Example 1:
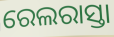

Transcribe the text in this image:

ରେଲରାସ୍ତା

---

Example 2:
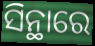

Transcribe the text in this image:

ସିନ୍ଥାରେ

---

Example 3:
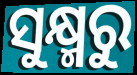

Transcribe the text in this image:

ସୁକ୍ଷ୍ମରୁ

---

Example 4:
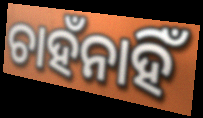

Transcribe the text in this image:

ଚାହଁନାହିଁ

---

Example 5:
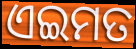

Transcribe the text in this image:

ଏଇମତ